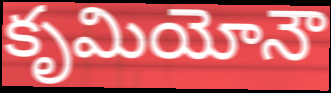
కృమియోనౌ